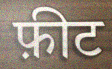
फ़ीट